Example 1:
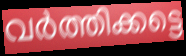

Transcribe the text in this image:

വർത്തിക്കട്ടെ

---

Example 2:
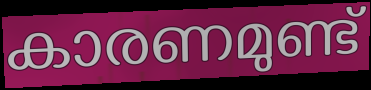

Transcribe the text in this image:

കാരണമുണ്ട്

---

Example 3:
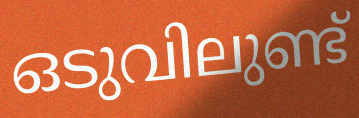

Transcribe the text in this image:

ഒടുവിലുണ്ട്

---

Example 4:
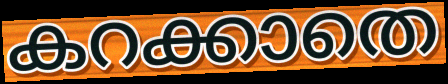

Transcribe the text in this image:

കറക്കാതെ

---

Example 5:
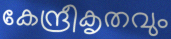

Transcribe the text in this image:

കേന്ദ്രീകൃതവും